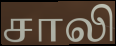
சாலி